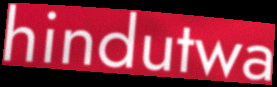
hindutwa